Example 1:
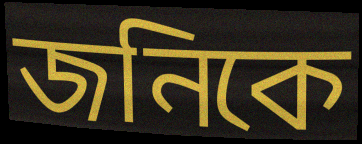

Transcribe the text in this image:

জনিকে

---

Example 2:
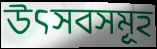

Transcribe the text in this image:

উৎসবসমূহ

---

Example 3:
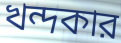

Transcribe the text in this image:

খন্দকার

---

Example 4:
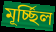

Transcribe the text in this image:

মূর্চ্ছিল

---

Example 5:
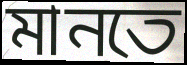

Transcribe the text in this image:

মানতে